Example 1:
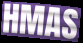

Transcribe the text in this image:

HMAS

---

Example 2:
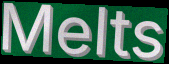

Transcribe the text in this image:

Melts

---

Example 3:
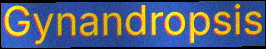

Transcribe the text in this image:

Gynandropsis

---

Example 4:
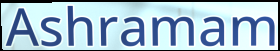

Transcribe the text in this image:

Ashramam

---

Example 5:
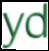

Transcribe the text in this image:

yd